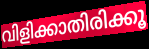
വിളിക്കാതിരിക്കൂ